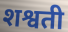
शश्वती